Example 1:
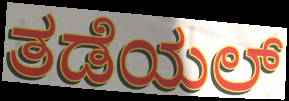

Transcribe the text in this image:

ತಡೆಯಲ್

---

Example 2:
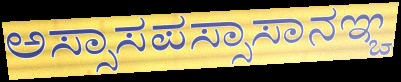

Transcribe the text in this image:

ಅಸ್ಸಾಸಪಸ್ಸಾಸಾನಞ್ಚ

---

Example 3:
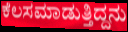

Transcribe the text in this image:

ಕೆಲಸಮಾಡುತ್ತಿದ್ದನು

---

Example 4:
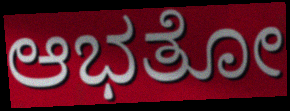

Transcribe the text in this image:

ಆಭತೋ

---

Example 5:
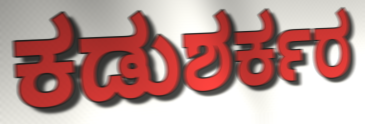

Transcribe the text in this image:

ಕಡುಶರ್ಕರ